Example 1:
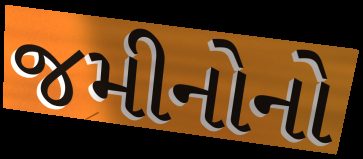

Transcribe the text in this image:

જમીનોનો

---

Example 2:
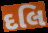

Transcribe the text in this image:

દલિ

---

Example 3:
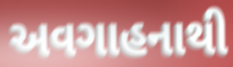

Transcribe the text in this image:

અવગાહનાથી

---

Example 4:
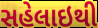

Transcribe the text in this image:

સહેલાઇથી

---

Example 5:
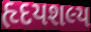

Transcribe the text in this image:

હૃદયશલ્ય